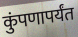
कुंपणापर्यंत